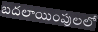
బదలాయింపులలో